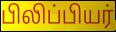
பிலிப்பியர்